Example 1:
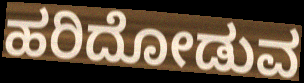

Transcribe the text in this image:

ಹರಿದೋಡುವ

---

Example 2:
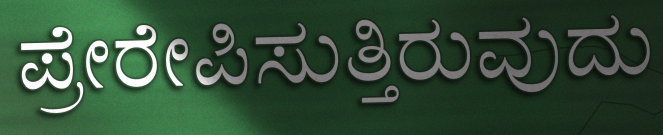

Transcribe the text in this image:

ಪ್ರೇರೇಪಿಸುತ್ತಿರುವುದು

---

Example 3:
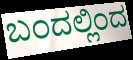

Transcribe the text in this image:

ಬಂದಲ್ಲಿಂದ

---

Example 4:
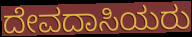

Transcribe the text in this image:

ದೇವದಾಸಿಯರು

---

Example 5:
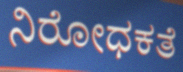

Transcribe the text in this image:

ನಿರೋಧಕತೆ